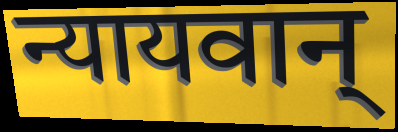
न्यायवान्